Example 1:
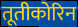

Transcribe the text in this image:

तूतीकोरिन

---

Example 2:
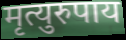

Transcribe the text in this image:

मृत्युरुपाय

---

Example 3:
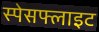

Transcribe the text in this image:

स्पेसफ्लाइट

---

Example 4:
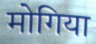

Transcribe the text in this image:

मोगिया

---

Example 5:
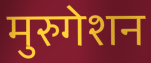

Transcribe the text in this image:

मुरुगेशन